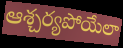
ఆశ్చర్యపోయేలా